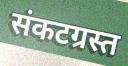
संकटग्रस्त